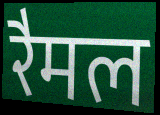
रैमल